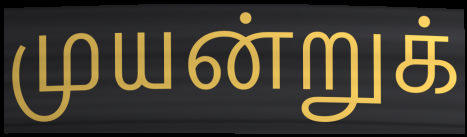
முயன்றுக்